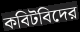
কবিটবিদের